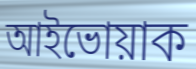
আইভোয়াক